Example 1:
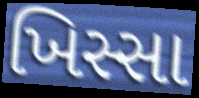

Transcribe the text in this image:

ખિસ્સા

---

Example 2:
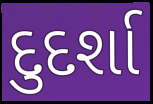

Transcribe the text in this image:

દુદર્શા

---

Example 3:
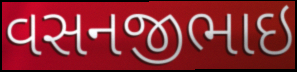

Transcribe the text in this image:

વસનજીભાઇ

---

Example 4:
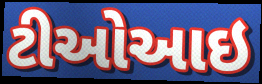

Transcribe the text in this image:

ટીઓઆઇ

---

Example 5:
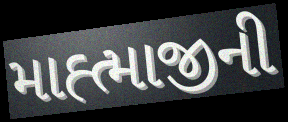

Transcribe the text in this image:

માહ્ત્માજીની